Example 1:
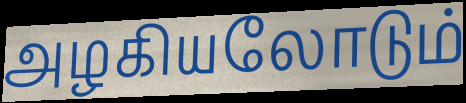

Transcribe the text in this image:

அழகியலோடும்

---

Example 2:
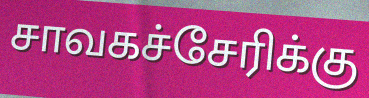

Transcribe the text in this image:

சாவகச்சேரிக்கு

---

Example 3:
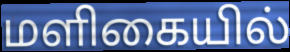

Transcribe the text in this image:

மளிகையில்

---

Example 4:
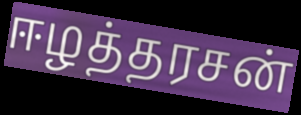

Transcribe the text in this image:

ஈழத்தரசன்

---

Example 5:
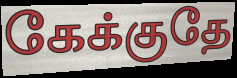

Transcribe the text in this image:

கேக்குதே